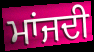
ਮਾਂਜਦੀ